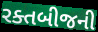
રક્તબીજની